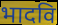
भादवि